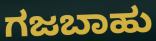
ಗಜಬಾಹು